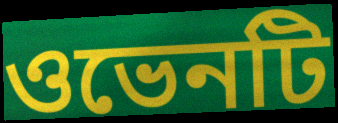
ওভেনটি